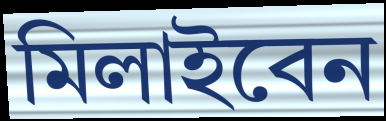
মিলাইবেন